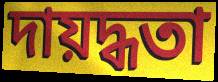
দায়দ্ধতা